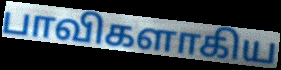
பாவிகளாகிய